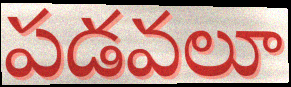
పడవలూ